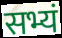
सभ्यं